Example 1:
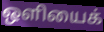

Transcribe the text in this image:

ஒளியைக்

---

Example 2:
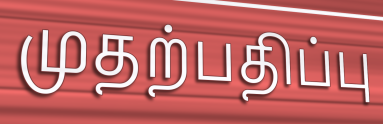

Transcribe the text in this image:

முதற்பதிப்பு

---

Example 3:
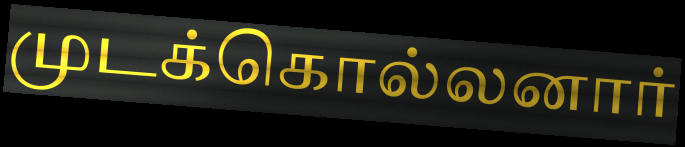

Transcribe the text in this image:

முடக்கொல்லனார்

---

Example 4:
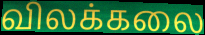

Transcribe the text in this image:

விலக்கலை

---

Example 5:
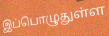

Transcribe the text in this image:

இப்பொழுதுள்ள